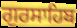
ਗੁਰਸਾਹਿਬ